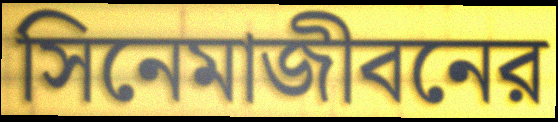
সিনেমাজীবনের